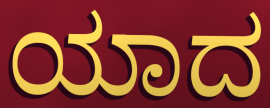
ಯಾದ